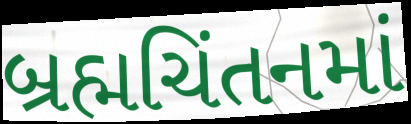
બ્રહ્મચિંતનમાં